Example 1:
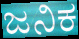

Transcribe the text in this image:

ಜನಿಕ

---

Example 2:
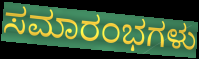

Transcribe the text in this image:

ಸಮಾರಂಭಗಳು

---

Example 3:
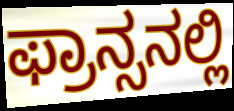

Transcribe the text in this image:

ಫ್ರಾನ್ಸನಲ್ಲಿ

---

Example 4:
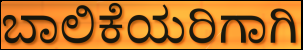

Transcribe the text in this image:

ಬಾಲಿಕೆಯರಿಗಾಗಿ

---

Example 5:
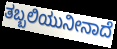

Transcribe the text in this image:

ತಬ್ಬಲಿಯುನೀನಾದೆ